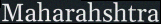
Maharahshtra